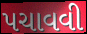
પચાવવી